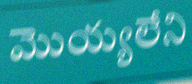
మొయ్యలేని